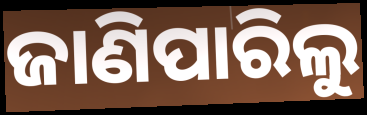
ଜାଣିପାରିଲୁ